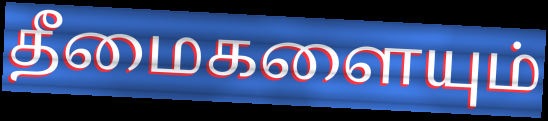
தீமைகளையும்